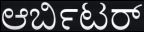
ಆರ್ಬಿಟರ್